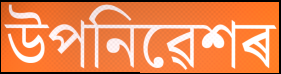
উপনিৱেশৰ